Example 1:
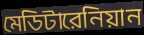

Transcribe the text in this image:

মেডিটারেনিয়ান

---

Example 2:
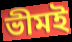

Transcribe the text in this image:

ভীমই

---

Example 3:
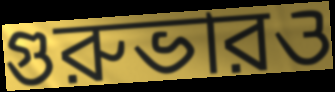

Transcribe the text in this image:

গুরুভারও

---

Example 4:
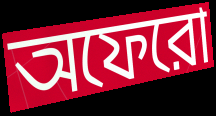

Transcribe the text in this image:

অফেরো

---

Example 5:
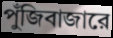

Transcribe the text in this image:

পুঁজিবাজারে